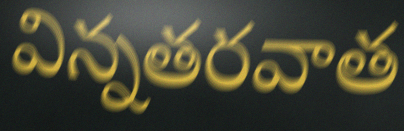
విన్నతరవాత